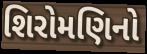
શિરોમણિનો